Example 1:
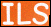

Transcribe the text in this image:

ILS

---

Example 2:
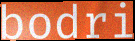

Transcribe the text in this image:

bodri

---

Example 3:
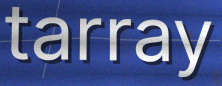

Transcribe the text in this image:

tarray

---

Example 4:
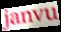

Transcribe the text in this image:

janvu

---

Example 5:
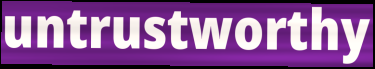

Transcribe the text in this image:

untrustworthy